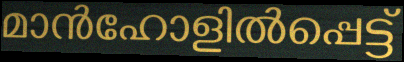
മാൻഹോളിൽപ്പെട്ട്